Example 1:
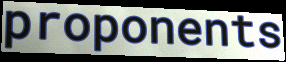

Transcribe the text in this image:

proponents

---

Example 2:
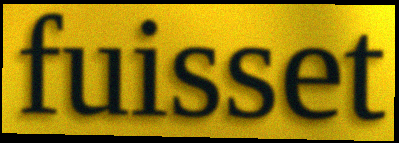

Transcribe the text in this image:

fuisset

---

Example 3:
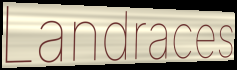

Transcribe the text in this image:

Landraces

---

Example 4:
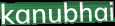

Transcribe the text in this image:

kanubhai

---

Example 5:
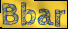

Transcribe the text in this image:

Bbar